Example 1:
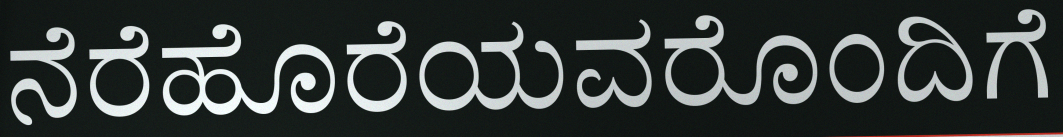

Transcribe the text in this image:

ನೆರೆಹೊರೆಯವರೊಂದಿಗೆ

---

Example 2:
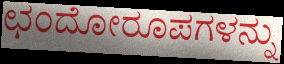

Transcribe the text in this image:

ಛಂದೋರೂಪಗಳನ್ನು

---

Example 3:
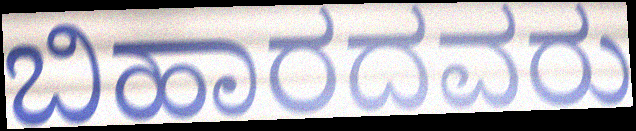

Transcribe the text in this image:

ಬಿಹಾರದವರು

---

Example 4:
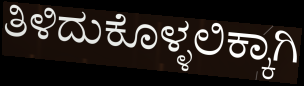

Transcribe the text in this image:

ತಿಳಿದುಕೊಳ್ಳಲಿಕ್ಕಾಗಿ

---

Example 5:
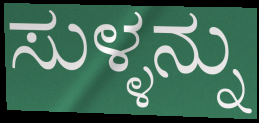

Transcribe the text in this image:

ಸುಳ್ಳನ್ನು